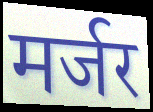
मर्जर